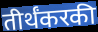
तीर्थंकरकी